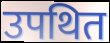
उपथित